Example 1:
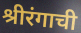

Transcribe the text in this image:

श्रीरंगाची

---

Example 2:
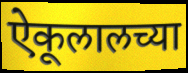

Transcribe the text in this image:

ऐकूलालच्या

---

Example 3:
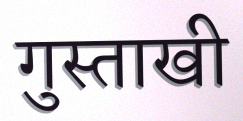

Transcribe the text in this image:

गुस्ताखी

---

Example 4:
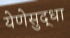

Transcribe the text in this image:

येणेसुद्धा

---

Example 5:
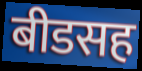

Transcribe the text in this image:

बीडसह